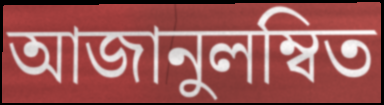
আজানুলম্বিত